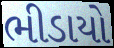
ભીડાયો